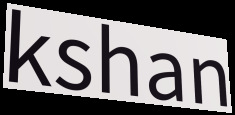
kshan